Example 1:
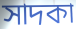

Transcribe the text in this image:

সাদকা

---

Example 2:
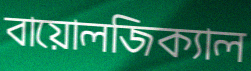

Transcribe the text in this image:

বায়োলজিক্যাল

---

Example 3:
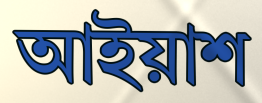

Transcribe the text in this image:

আইয়াশ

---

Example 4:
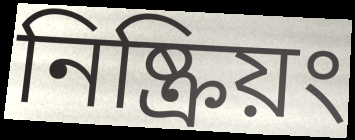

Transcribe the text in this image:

নিষ্ক্রিয়ং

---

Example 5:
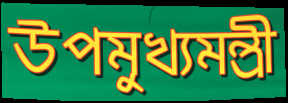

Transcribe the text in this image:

উপমুখ্যমন্ত্রী